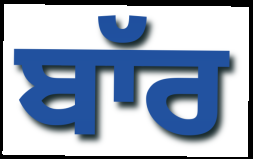
ਬਾੱਰ